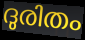
ദുരിതം